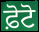
ਫ਼ੋਟੋ